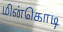
மின்கொடி